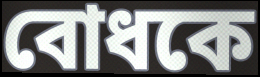
বোধকে